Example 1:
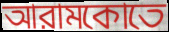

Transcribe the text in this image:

আরামকোতে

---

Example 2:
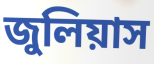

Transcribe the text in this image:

জুলিয়াস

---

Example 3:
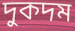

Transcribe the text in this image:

দুকদম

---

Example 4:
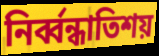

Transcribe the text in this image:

নির্ব্বন্ধাতিশয়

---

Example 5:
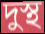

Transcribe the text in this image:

দুস্থ